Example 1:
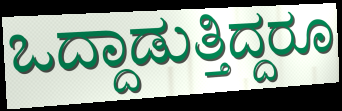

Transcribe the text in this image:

ಒದ್ದಾಡುತ್ತಿದ್ದರೂ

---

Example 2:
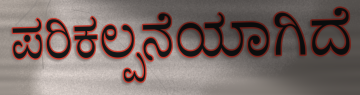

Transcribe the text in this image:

ಪರಿಕಲ್ಪನೆಯಾಗಿದೆ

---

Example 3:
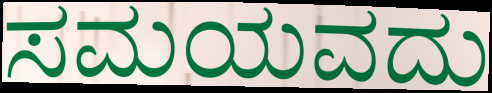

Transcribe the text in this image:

ಸಮಯವದು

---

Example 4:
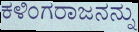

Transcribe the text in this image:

ಕಳಿಂಗರಾಜನನ್ನು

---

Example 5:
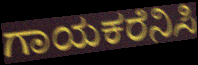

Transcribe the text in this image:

ಗಾಯಕರೆನಿಸಿ